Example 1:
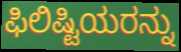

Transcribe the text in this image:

ಫಿಲಿಷ್ಟಿಯರನ್ನು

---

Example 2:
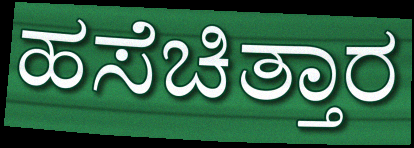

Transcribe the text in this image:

ಹಸೆಚಿತ್ತಾರ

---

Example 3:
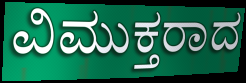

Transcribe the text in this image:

ವಿಮುಕ್ತರಾದ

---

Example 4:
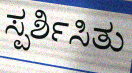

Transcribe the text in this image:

ಸ್ಪರ್ಶಿಸಿತು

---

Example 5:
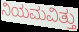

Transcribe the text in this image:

ನಿಯಮವಿತ್ತು